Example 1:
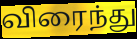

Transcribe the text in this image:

விரைந்து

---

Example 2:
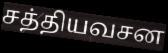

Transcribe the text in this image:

சத்தியவசன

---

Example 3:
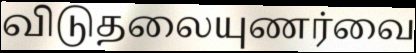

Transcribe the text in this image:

விடுதலையுணர்வை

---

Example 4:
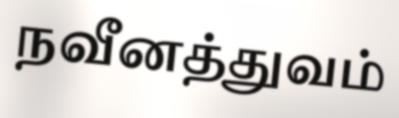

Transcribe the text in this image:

நவீனத்துவம்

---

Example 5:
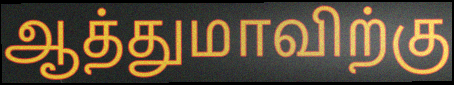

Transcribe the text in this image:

ஆத்துமாவிற்கு